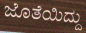
ಜೊತೆಯಿದ್ದು